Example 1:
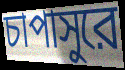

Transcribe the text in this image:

চাপাসুরে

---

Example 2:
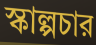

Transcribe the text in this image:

স্কাল্পচার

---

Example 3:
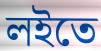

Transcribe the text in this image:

লইতে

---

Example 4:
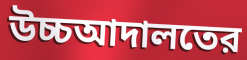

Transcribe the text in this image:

উচ্চআদালতের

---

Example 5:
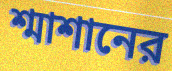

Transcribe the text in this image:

শ্মাশানের